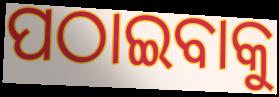
ପଠାଇବାକୁ